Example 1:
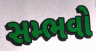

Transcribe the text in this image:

સમ્ભવો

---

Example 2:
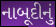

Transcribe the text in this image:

નાબૂદીનું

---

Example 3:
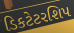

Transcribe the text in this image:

ડિકટેટરશિપ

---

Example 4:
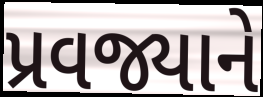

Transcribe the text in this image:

પ્રવજ્યાને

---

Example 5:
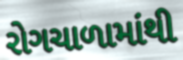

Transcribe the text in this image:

રોગચાળામાંથી